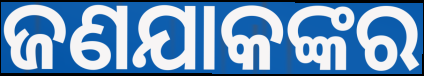
ଜଣଯାକଙ୍କର